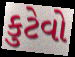
કુટેવો